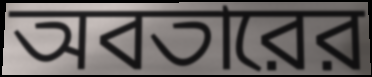
অবতারের